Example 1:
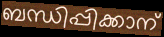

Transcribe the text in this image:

ബന്ധിപ്പിക്കാന്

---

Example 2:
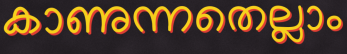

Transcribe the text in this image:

കാണുന്നതെല്ലാം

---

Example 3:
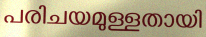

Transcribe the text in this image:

പരിചയമുള്ളതായി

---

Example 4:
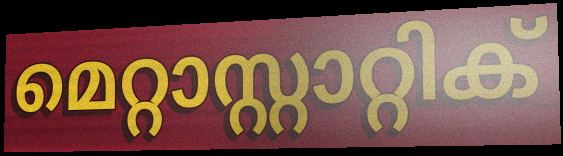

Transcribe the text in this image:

മെറ്റാസ്റ്റാറ്റിക്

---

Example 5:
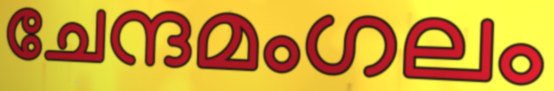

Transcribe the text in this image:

ചേന്ദമംഗലം